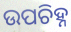
ଉପଚିହ୍ନ